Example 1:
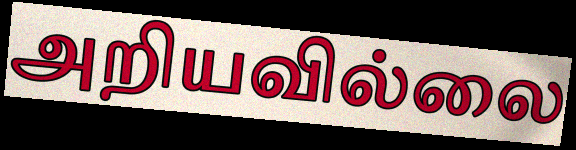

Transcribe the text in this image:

அறியவில்லை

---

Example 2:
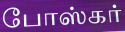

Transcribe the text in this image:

போஸ்கர்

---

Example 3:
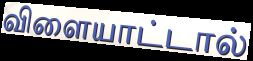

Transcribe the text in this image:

விளையாட்டால்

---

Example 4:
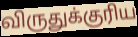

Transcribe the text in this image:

விருதுக்குரிய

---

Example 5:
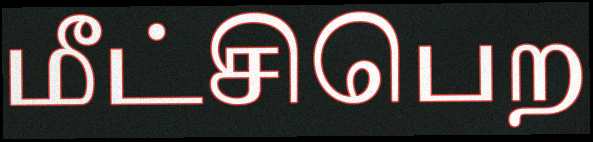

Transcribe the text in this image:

மீட்சிபெற